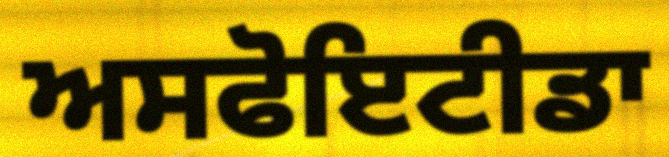
ਅਸਫੋਇਟੀਡਾ